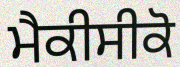
ਮੈਕੀਸੀਕੋ